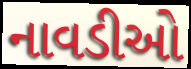
નાવડીઓ